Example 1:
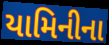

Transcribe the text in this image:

યામિનીના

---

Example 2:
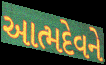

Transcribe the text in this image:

આત્મદેવને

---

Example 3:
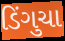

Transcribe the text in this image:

ડિંગુચા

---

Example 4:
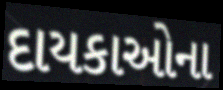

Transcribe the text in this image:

દાયકાઓના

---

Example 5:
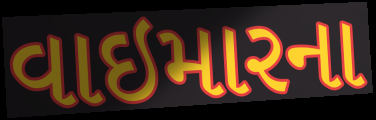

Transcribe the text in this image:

વાઇમારના